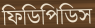
ফিডিপিডিস